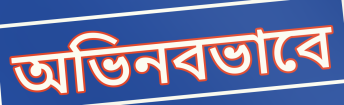
অভিনবভাবে